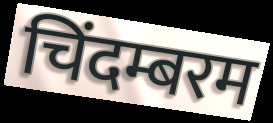
चिंदम्बरम